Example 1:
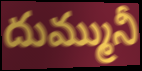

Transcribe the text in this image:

దుమ్మునీ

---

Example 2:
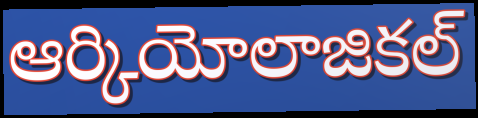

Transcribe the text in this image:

ఆర్కియోలాజికల్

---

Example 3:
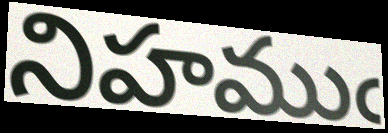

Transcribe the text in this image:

నిహముఁ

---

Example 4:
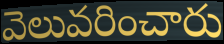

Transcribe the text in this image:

వెలువరించారు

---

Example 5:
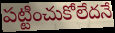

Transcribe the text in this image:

పట్టించుకోలేదనే